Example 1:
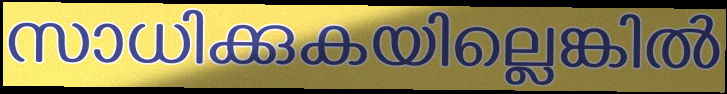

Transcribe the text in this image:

സാധിക്കുകയില്ലെങ്കിൽ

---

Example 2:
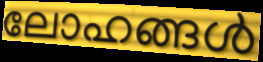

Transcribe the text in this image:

ലോഹങ്ങൾ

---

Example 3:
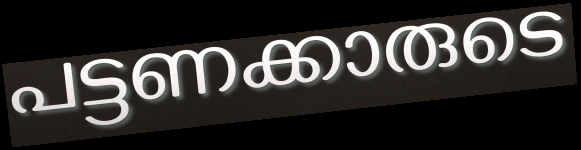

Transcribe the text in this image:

പട്ടണക്കാരുടെ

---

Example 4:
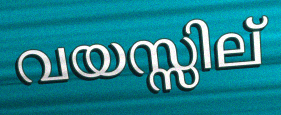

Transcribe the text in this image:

വയസ്സില്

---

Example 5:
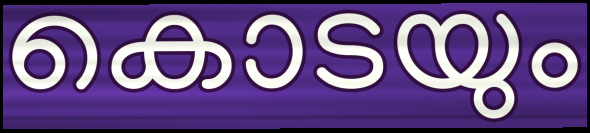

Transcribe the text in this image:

കൊടയും